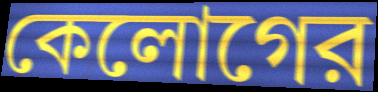
কেলোগের